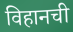
विहानची